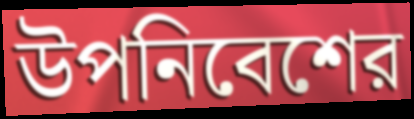
উপনিবেশের